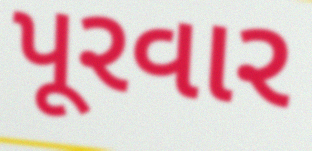
પૂરવાર